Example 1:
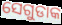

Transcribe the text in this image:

ସେଗୁଡାକ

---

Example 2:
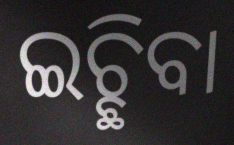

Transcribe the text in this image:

ଇଚ୍ଛିବା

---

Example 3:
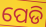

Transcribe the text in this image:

ପେଡି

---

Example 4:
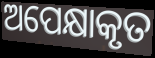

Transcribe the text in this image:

ଅପେକ୍ଷାକୃତ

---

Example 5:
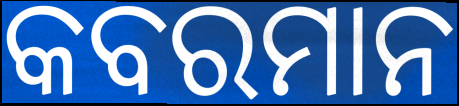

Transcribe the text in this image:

କବରମାନ